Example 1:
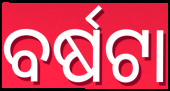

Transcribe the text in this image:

ବର୍ଷଟା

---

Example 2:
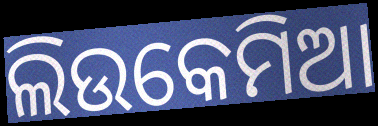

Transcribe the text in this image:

ଲିଉକେମିଆ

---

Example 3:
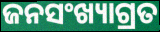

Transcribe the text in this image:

ଜନସଂଖ୍ୟାଗ୍ରତ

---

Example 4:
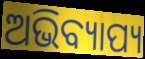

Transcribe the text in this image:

ଅଭିବ୍ୟାପ୍ୟ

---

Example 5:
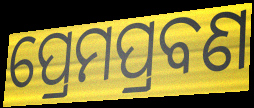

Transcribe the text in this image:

ପ୍ରେମପ୍ରବଣ